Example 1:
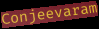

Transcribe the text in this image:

Conjeevaram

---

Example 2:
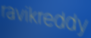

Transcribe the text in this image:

ravikreddy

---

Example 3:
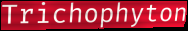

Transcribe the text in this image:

Trichophyton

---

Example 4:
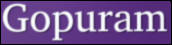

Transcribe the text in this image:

Gopuram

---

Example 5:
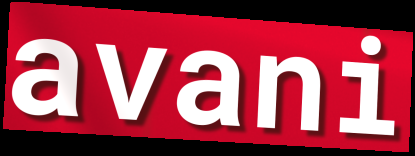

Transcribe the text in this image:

avani